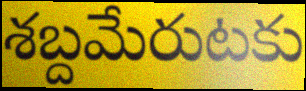
శబ్దమేరుటకు